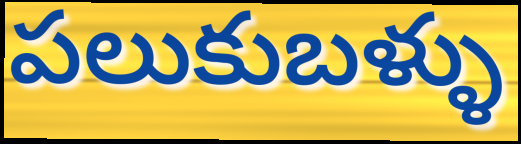
పలుకుబళ్ళు